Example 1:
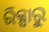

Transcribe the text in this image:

ରିକ୍ସାରୁ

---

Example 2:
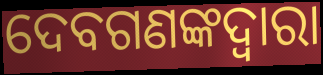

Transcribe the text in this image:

ଦେବଗଣଙ୍କଦ୍ୱାରା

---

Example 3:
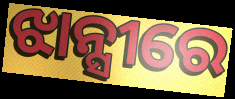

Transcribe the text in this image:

ଝାନ୍ସୀରେ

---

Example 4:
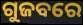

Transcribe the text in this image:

ଗୁଜବରେ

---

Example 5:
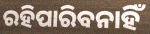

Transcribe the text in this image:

ରହିପାରିବନାହିଁ